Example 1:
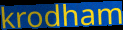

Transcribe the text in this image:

krodham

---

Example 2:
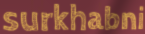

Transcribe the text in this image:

surkhabni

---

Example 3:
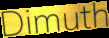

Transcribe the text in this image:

Dimuth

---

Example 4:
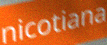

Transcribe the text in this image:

nicotiana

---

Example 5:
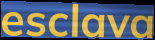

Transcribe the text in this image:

esclava